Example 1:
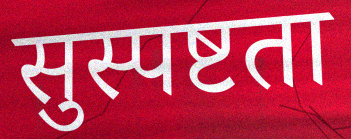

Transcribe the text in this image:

सुस्पष्टता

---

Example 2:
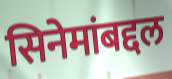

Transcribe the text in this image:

सिनेमांबद्दल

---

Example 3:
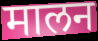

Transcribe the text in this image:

मालन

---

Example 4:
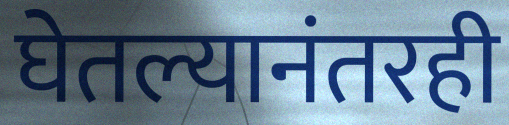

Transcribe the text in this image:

घेतल्यानंतरही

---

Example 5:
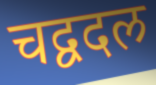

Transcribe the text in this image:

चद्वदल